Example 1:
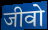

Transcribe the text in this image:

जीवो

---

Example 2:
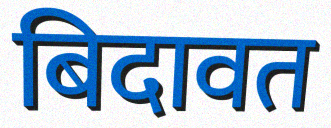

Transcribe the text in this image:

बिदावत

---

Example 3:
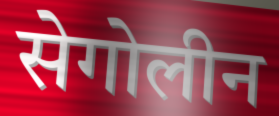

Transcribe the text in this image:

सेगोलीन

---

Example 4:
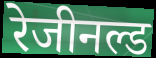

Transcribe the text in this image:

रेजीनल्ड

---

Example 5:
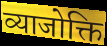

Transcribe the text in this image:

व्याजोक्ति